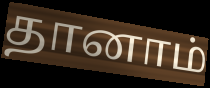
தானாம்